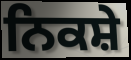
ਨਿਕਸ਼ੇ